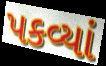
પકવ્યાં